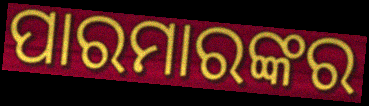
ପାରମାରଙ୍କର